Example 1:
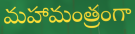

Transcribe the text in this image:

మహామంత్రంగా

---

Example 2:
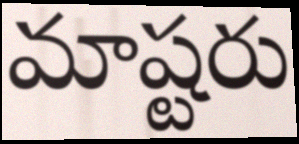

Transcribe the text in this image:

మాష్టరు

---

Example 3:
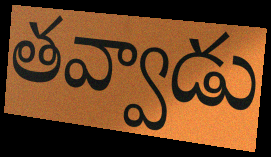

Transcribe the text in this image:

తవ్వాడు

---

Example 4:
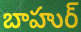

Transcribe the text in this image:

బాహుర్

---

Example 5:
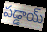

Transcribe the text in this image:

పడ్డాయ్